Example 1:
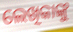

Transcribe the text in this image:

ଲେଖିକାଙ୍କୁ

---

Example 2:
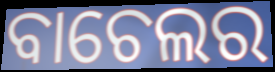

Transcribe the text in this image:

ବାଚେଲର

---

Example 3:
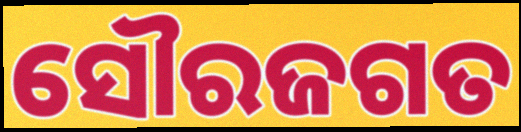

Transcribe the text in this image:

ସୌରଜଗତ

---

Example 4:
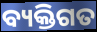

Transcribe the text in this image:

ବ୍ୟକ୍ତିଗତ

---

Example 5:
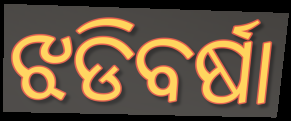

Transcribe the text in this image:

ଝଡିବର୍ଷା